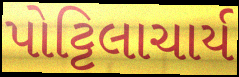
પોટ્ટિલાચાર્ય